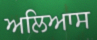
ਅਲਿਆਸ